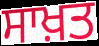
ਸਾਖ਼ਤ